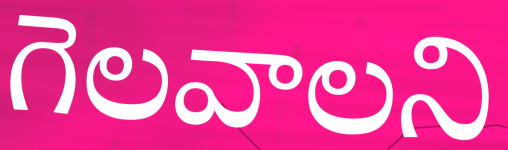
గెలవాలని